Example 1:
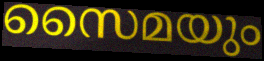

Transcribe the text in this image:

സൈമയും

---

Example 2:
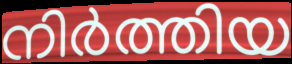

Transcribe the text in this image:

നിർത്തിയ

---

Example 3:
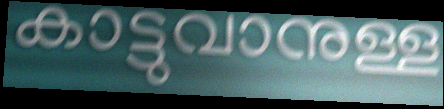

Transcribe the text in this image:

കാട്ടുവാനുള്ള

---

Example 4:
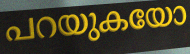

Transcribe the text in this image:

പറയുകയോ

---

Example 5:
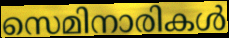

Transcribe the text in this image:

സെമിനാരികൾ